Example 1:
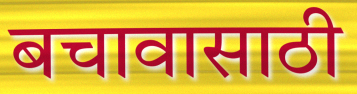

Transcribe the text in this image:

बचावासाठी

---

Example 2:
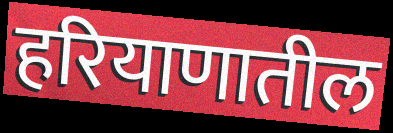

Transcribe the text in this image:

हरियाणातील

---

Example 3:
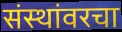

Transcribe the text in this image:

संस्थांवरचा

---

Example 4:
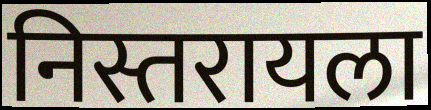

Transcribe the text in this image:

निस्तरायला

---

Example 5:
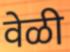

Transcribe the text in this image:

वेळी